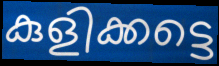
കുളിക്കട്ടെ